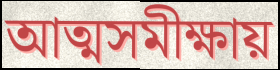
আত্মসমীক্ষায়